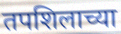
तपशिलाच्या